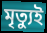
মৃত্যুই